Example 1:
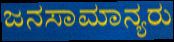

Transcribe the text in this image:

ಜನಸಾಮಾನ್ಯರು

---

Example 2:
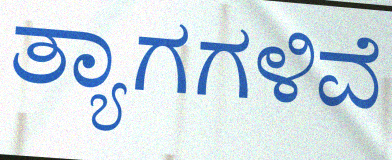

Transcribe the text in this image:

ತ್ಯಾಗಗಳಿವೆ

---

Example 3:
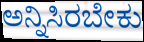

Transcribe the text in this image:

ಅನ್ನಿಸಿರಬೇಕು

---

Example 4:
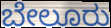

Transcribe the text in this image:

ಬೇಲೂರು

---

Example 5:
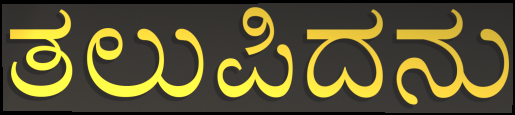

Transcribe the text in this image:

ತಲುಪಿದನು